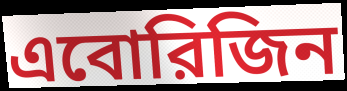
এবোরিজিন